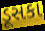
ડૂસકા